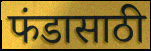
फंडासाठी